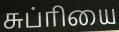
சுப்ரியை